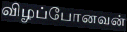
விழப்போனவன்